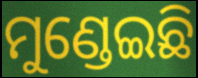
ମୁଣ୍ଡେଇଛି